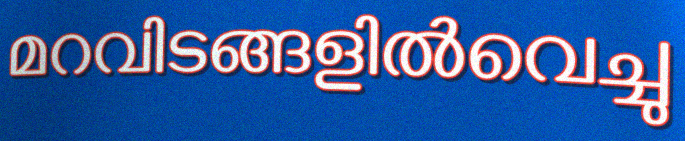
മറവിടങ്ങളിൽവെച്ചു